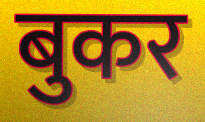
बुकर